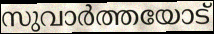
സുവാർത്തയോട്